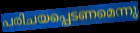
പരിചയപ്പെടണമെന്നു